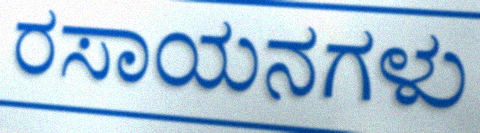
ರಸಾಯನಗಳು